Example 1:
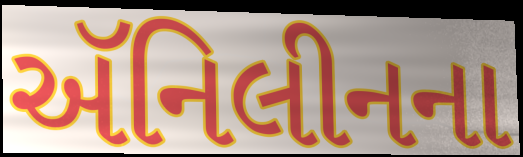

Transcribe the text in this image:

ઍનિલીનના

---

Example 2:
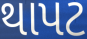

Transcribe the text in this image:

થાપટ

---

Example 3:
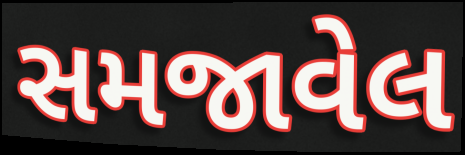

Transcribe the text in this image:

સમજાવેલ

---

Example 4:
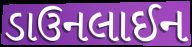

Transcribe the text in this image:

ડાઉનલાઈન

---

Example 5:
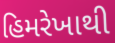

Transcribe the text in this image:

હિમરેખાથી